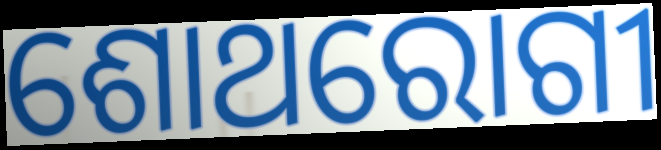
ଶୋଥରୋଗୀ